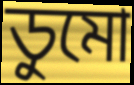
ডুমো